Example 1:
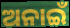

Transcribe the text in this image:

ଅନାଇଁ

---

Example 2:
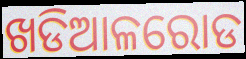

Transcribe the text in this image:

ଖଡିଆଳରୋଡ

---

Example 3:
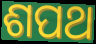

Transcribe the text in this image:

ଶପଥ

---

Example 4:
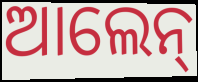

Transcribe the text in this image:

ଆଲେନ୍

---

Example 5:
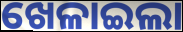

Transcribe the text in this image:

ଖେଳାଇଲା